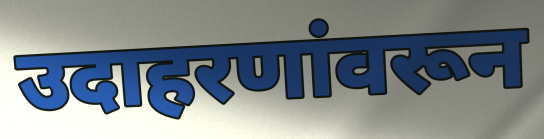
उदाहरणांवरून